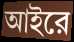
আইরে